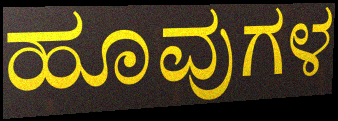
ಹೂವುಗಳ